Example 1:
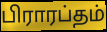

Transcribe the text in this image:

பிராரப்தம்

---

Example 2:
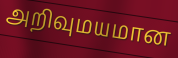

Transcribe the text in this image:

அறிவுமயமான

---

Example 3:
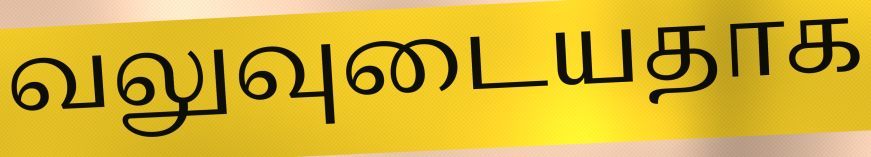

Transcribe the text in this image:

வலுவுடையதாக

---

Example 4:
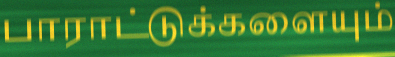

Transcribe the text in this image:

பாராட்டுக்களையும்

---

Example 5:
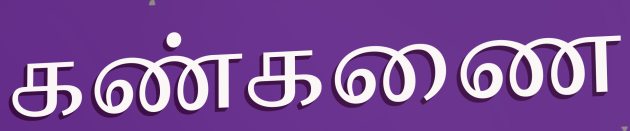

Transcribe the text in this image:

கண்கணை